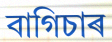
বাগিচাৰ